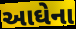
આઘેના